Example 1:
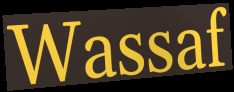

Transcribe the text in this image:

Wassaf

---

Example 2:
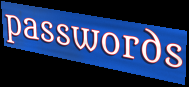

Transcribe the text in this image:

passwords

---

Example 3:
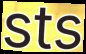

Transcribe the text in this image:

sts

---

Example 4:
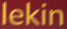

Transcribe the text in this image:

lekin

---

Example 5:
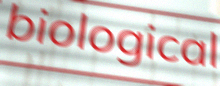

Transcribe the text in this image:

biological